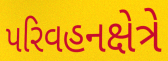
પરિવહનક્ષેત્રે